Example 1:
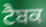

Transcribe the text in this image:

ਟੈਬਕ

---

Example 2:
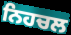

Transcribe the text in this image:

ਨਿਹਚਲ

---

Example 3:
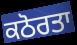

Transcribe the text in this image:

ਕਠੋਰਤਾ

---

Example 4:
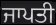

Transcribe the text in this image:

ਜਾਪਤੀ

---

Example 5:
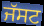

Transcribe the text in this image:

ਜੱਸਟ